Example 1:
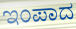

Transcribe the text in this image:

ಇಂಪಾದ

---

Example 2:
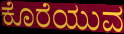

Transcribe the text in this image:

ಕೊರೆಯುವ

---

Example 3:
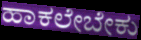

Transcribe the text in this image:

ಹಾಕಲೇಬೇಕು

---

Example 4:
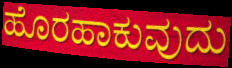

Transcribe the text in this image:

ಹೊರಹಾಕುವುದು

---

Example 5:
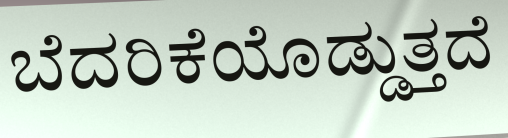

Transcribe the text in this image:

ಬೆದರಿಕೆಯೊಡ್ಡುತ್ತದೆ